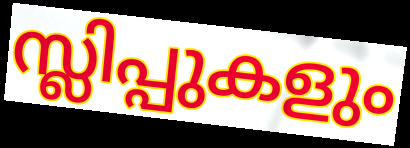
സ്ലിപ്പുകളും